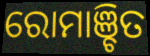
ରୋମାଞ୍ଚିତ